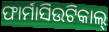
ଫାର୍ମାସିଉଟିକାଲ୍